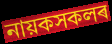
নায়কসকলৰ